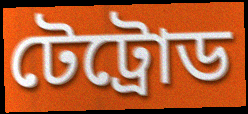
টেট্রোড